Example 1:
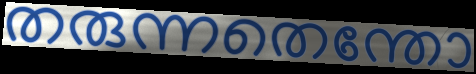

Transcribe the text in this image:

തരുന്നതെന്തോ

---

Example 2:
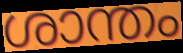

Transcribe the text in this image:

ശാന്തം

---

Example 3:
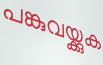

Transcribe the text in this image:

പങ്കുവയ്ക്കുക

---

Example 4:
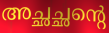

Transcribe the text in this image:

അച്ഛച്ഛന്റെ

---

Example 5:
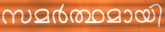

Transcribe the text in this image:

സമർത്ഥമായി